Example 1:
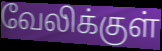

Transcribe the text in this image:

வேலிக்குள்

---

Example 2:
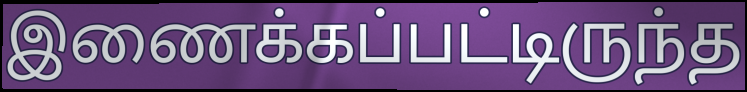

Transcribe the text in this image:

இணைக்கப்பட்டிருந்த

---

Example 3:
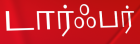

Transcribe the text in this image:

டார்ஃபர்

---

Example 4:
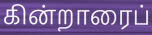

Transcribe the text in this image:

கின்றாரைப்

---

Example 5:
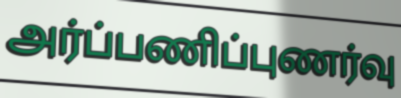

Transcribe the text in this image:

அர்ப்பணிப்புணர்வு